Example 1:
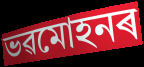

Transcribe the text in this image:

ভৱমোহনৰ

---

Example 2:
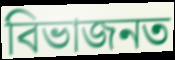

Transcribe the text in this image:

বিভাজনত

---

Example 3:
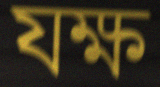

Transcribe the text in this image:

যক্ষ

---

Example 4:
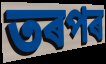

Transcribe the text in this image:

তৰপৰ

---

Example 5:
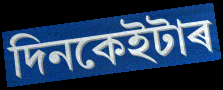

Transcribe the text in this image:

দিনকেইটাৰ